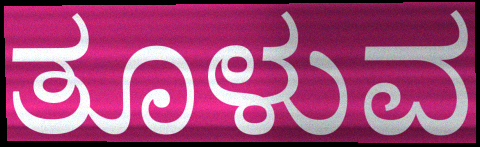
ತೂಳುವ